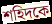
শহিদকে